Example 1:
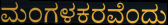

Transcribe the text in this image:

ಮಂಗಳಕರವೆಂದು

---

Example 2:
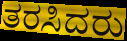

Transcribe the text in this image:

ತರಸಿದರು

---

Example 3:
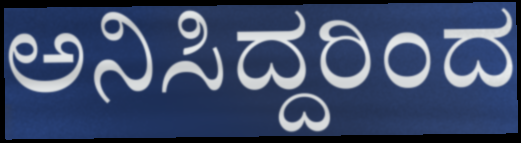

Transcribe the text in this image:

ಅನಿಸಿದ್ದರಿಂದ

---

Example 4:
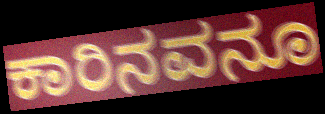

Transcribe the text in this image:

ಕಾರಿನವನೂ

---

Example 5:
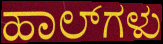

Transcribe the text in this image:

ಹಾಲ್‌ಗಳು